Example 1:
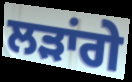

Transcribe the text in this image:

ਲੜਾਂਗੇ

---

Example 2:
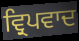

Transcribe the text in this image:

ਵ੍ਰਿਪਵਾਦ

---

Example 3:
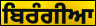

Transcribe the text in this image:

ਬਿਰੰਗੀਆ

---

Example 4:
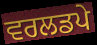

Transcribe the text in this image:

ਵਰਲਡਪੇ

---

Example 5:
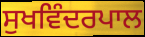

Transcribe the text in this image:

ਸੁਖਵਿੰਦਰਪਾਲ